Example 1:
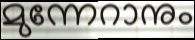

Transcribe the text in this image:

മുന്നേറാനും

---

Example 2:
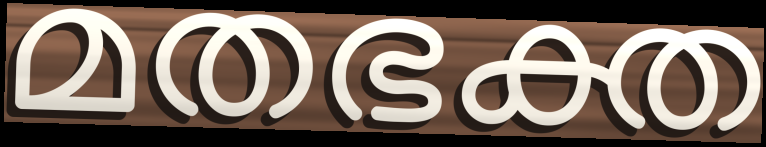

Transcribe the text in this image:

മതഭക്ത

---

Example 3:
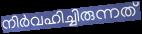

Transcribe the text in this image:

നിർവഹിച്ചിരുന്നത്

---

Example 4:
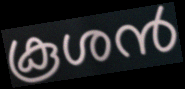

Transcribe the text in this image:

കൂശൻ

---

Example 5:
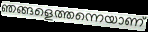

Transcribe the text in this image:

ഞങ്ങളെത്തന്നെയാണ്